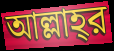
আল্লাহ্‌র